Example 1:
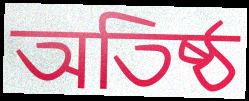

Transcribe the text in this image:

অতিষ্ঠ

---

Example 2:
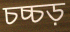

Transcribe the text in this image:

চচ্চড়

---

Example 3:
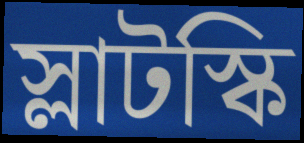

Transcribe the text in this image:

স্লাটস্কি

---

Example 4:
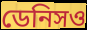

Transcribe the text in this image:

ডেনিসও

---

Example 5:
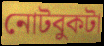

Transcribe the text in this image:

নোটবুকটা